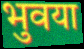
भुवया